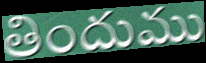
తిందుము